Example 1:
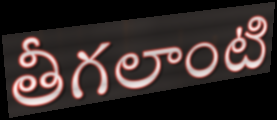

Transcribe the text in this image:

తీగలాంటి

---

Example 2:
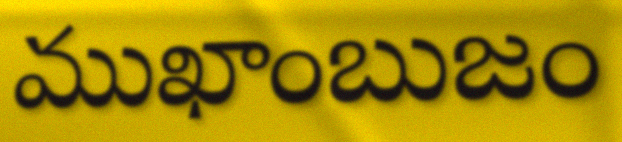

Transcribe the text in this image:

ముఖాంబుజం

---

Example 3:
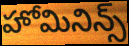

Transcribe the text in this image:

హోమినిన్స్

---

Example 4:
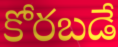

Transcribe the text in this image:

కోరబడే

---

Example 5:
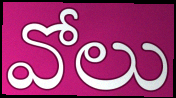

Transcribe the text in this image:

వోలు